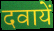
दवायें